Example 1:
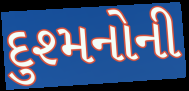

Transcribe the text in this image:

દુશ્મનોની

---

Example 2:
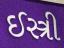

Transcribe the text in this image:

ઈસ્ત્રી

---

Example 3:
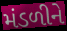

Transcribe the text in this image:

મંડળીને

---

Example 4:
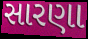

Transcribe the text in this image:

સારણા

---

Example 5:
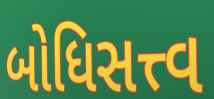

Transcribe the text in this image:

બોધિસત્ત્વ